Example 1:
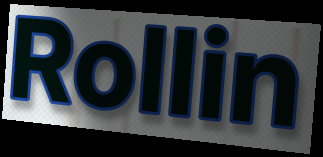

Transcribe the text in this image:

Rollin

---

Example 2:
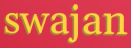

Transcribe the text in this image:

swajan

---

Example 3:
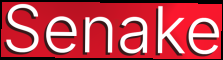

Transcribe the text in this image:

Senake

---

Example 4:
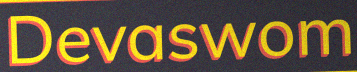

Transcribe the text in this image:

Devaswom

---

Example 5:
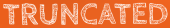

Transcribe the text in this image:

TRUNCATED